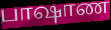
பாஷாண